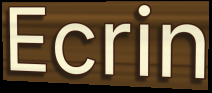
Ecrin